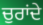
ਚੁਰਾਂਦੇ